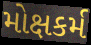
મોક્ષકર્મ